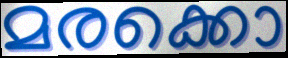
മരക്കൊ